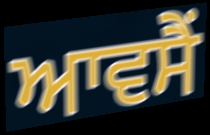
ਆਵਸੈਂ